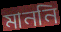
মাননি